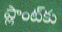
ప్లాంట్‌కు